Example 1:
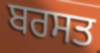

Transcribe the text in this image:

ਬਰਸਤ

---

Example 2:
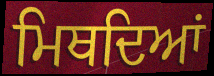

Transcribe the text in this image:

ਮਿਥਦਿਆਂ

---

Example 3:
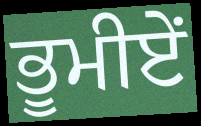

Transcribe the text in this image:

ਭੂਮੀਏਂ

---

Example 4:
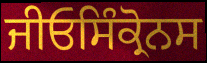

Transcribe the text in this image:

ਜੀਓਸਿੰਕ੍ਰੋਨਸ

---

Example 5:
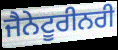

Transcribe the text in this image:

ਜੈਨੇਟੂਰੀਨਰੀ